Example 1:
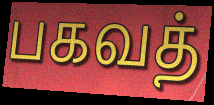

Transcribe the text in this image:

பகவத்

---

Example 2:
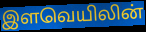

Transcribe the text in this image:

இளவெயிலின்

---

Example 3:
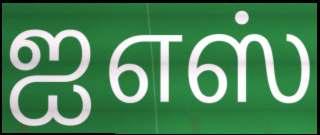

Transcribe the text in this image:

ஐஎஸ்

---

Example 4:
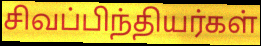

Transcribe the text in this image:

சிவப்பிந்தியர்கள்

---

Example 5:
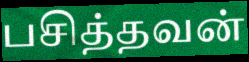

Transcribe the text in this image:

பசித்தவன்